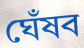
ঘেঁষব